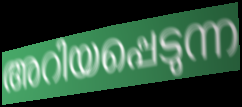
അറിയപ്പെടുന്ന